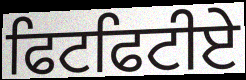
ਫਿਟਫਿਟੀਏ